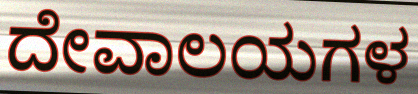
ದೇವಾಲಯಗಳ